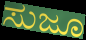
ಸುಜೂ